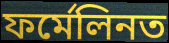
ফৰ্মেলিনত